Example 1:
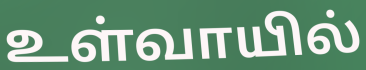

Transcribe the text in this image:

உள்வாயில்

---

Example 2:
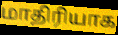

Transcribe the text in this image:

மாதிரியாக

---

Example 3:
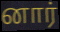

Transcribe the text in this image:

னார்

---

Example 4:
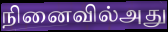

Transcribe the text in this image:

நினைவில்அது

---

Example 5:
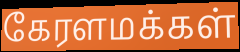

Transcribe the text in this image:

கேரளமக்கள்